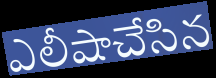
ఎలీషాచేసిన